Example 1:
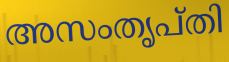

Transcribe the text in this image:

അസംതൃപ്തി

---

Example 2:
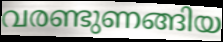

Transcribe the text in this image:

വരണ്ടുണങ്ങിയ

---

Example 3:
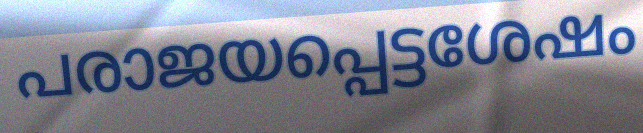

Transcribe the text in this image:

പരാജയപ്പെട്ടശേഷം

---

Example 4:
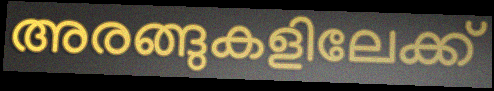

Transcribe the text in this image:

അരങ്ങുകളിലേക്ക്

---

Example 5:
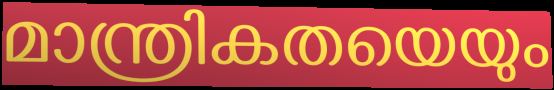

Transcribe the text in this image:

മാന്ത്രികതയെയും